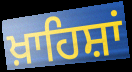
ਖ਼ਾਹਿਸ਼ਾਂ